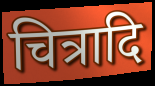
चित्रादि